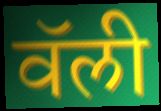
वॅली